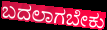
ಬದಲಾಗಬೇಕು